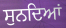
ਸੁਨਦਿਆਂ